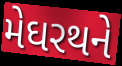
મેઘરથને